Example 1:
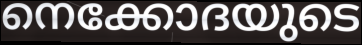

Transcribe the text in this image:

നെക്കോദയുടെ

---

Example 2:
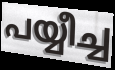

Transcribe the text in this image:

പയ്യീച്ച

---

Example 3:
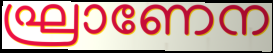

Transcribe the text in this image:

ഘ്രാണേന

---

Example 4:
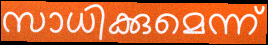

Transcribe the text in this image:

സാധിക്കുമെന്ന്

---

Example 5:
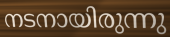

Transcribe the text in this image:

നടനായിരുന്നു